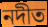
নদীত